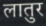
लातुर